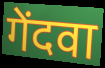
गेंदवा